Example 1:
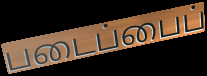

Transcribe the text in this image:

படைப்பைப்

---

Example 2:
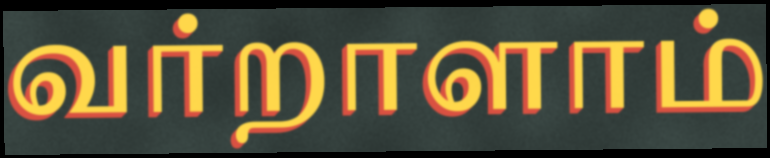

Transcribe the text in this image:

வர்றாளாம்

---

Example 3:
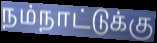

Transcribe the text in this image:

நம்நாட்டுக்கு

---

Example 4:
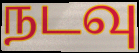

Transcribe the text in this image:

நடவு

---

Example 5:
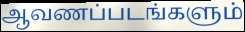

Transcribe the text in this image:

ஆவணப்படங்களும்